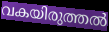
വകയിരുത്തൽ